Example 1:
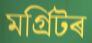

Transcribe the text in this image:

মৰ্গ্ৰিটৰ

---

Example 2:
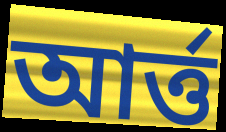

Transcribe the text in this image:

আৰ্ত্ত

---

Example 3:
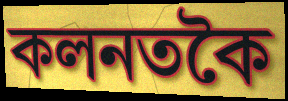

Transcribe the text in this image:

কলনতকৈ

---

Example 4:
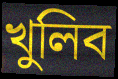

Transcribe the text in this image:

খুলিব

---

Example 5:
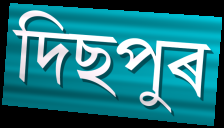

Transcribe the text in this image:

দিছপুৰ